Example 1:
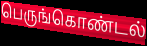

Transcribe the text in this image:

பெருங்கொண்டல்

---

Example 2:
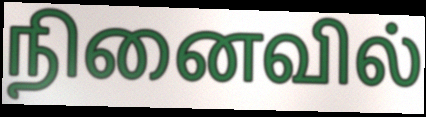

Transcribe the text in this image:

நினைவில்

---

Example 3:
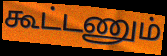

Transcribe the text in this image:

கூட்டணும்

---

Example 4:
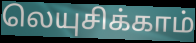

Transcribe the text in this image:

லெயுசிக்காம்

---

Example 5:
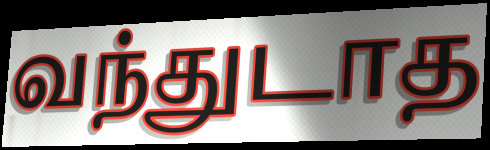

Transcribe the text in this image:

வந்துடாத